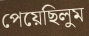
পেয়েছিলুম